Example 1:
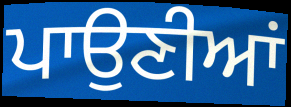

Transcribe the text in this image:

ਪਾਉਣੀਆਂ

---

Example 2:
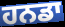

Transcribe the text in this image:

ਹਨਡਾ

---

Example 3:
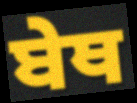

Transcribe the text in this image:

ਬੇਥ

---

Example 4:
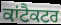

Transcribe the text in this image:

ਕਾਂਟੈਕਟਰ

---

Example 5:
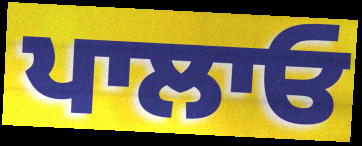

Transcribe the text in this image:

ਪਾਲਾਓ